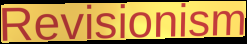
Revisionism